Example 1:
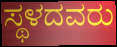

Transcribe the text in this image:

ಸ್ಥಳದವರು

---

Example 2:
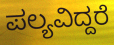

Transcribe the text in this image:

ಪಲ್ಯವಿದ್ದರೆ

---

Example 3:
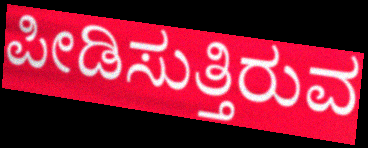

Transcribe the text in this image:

ಪೀಡಿಸುತ್ತಿರುವ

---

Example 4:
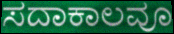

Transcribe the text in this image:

ಸದಾಕಾಲವೂ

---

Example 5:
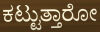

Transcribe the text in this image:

ಕಟ್ಟುತ್ತಾರೋ